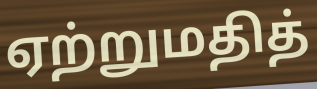
ஏற்றுமதித்